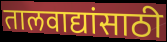
तालवाद्यांसाठी